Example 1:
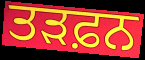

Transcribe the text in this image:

ਤੜਫ਼ਨ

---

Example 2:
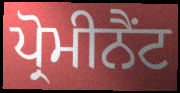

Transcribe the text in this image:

ਪ੍ਰੋਮੀਨੈਂਟ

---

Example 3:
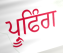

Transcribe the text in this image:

ਪ੍ਰੂਫਿੰਗ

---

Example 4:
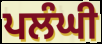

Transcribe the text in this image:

ਪਲੰਘੀ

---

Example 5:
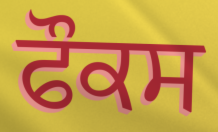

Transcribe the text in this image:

ਫੌਕਸ